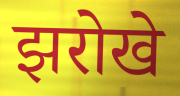
झरोखे